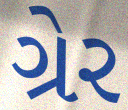
ગ્રેર